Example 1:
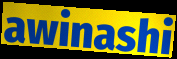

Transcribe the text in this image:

awinashi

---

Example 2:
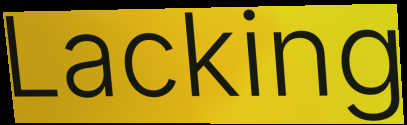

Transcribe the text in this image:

Lacking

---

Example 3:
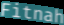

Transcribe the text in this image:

Fitnah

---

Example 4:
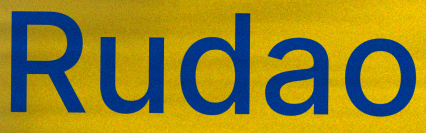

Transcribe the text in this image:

Rudao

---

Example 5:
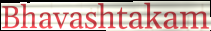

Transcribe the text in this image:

Bhavashtakam